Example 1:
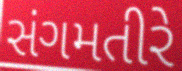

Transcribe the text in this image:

સંગમતીરે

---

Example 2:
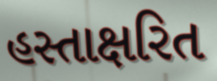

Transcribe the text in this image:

હસ્તાક્ષરિત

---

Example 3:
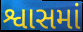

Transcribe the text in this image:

શ્વાસમાં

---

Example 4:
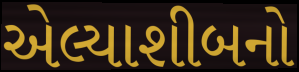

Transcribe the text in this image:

એલ્યાશીબનો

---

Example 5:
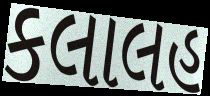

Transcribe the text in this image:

કલાલહ